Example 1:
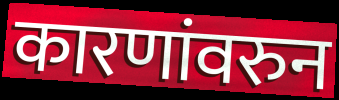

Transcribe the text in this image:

कारणांवरुन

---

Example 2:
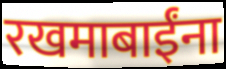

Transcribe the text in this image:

रखमाबाईंना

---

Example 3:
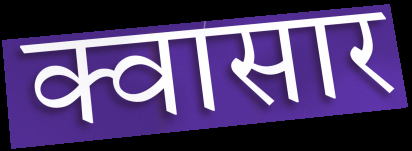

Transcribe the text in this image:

क्वासार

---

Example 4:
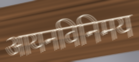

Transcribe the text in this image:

आयनविनिमय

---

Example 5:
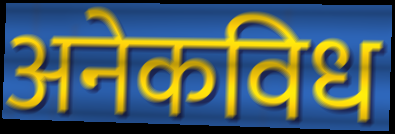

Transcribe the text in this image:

अनेकविध